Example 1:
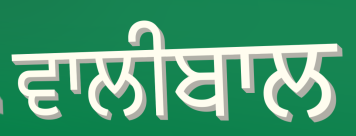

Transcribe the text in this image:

ਵਾਲੀਬਾਲ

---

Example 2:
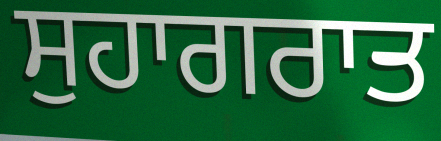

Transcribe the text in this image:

ਸੁਹਾਗਰਾਤ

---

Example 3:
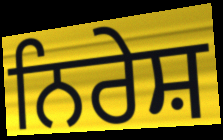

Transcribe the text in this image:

ਨਿਰੇਸ਼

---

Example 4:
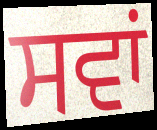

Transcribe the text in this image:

ਸਵਾਂ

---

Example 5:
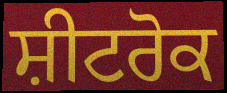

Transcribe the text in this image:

ਸ਼ੀਟਰੋਕ